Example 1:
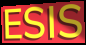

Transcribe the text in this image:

ESIS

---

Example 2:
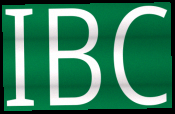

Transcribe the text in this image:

IBC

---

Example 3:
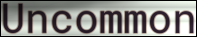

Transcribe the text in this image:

Uncommon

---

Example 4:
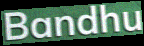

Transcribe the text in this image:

Bandhu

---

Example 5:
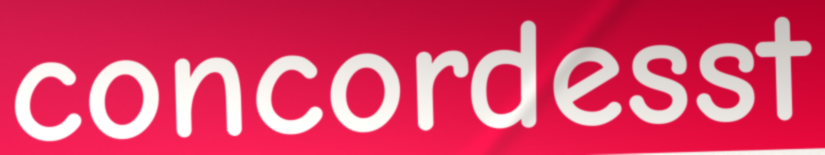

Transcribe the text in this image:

concordesst